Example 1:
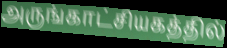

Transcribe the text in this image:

அருங்காட்சியகத்தில்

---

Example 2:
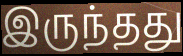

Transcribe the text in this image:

இருந்தது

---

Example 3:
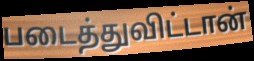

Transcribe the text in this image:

படைத்துவிட்டான்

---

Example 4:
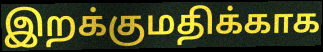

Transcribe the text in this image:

இறக்குமதிக்காக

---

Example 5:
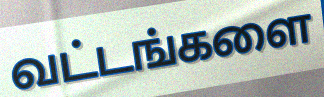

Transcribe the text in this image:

வட்டங்களை